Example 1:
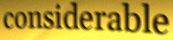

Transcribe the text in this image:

considerable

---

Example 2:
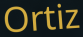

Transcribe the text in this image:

Ortiz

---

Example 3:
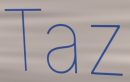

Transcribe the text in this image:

Taz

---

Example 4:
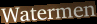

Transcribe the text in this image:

Watermen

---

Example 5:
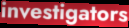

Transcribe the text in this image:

investigators